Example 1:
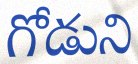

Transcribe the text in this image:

గోడుని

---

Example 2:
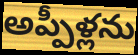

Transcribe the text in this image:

అప్పీళ్లను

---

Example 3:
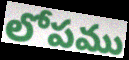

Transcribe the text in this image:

లోపము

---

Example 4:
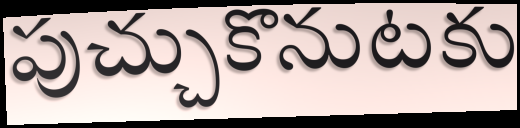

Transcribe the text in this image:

పుచ్చుకొనుటకు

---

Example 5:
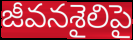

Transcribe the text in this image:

జీవనశైలిపై